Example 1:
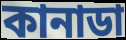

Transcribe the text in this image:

কানাডা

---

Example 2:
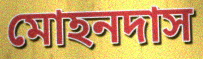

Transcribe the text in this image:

মোহনদাস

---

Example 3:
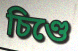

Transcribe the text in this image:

চিণ্ডে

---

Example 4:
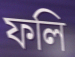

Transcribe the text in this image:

ফলি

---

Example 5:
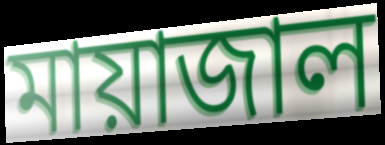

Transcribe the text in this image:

মায়াজাল